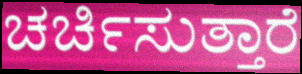
ಚರ್ಚಿಸುತ್ತಾರೆ